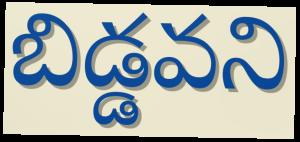
బిడ్డవని